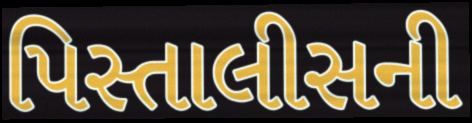
પિસ્તાલીસની